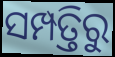
ସମ୍ପତ୍ତିରୁ